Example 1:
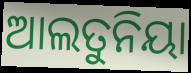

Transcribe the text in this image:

ଆଲତୁନିୟା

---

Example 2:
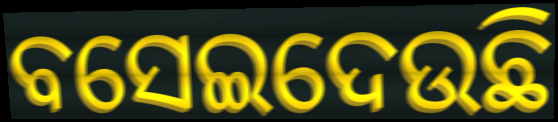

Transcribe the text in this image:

ବସେଇଦେଉଛି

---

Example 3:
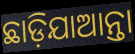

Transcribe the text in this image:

ଛାଡ଼ିଯାଆନ୍ତା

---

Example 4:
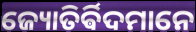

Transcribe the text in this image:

ଜ୍ୟୋତିର୍ଵିଦମାନେ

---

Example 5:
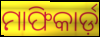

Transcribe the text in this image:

ମାଫିକାର୍ଡ଼